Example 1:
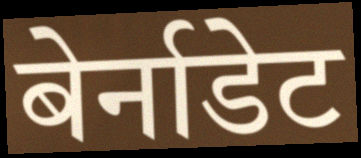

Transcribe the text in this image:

बेर्नाडेट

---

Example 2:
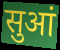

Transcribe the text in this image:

सुआं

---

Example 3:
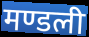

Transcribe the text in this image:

मण्डली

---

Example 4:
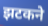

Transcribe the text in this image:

झटकने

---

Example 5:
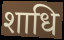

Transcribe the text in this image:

शाधि